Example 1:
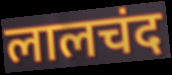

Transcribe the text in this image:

लालचंद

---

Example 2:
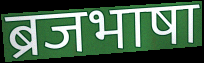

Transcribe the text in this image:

ब्रजभाषा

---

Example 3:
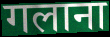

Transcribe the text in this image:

गलाना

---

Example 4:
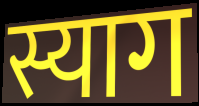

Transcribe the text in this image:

स्याग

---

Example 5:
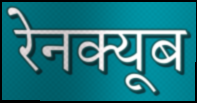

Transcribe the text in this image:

रेनक्यूब